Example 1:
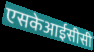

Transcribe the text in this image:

एसकेआईसीसी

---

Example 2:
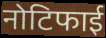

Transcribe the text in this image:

नोटिफाई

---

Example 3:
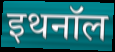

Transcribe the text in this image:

इथनॉल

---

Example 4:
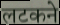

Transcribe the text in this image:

लटकने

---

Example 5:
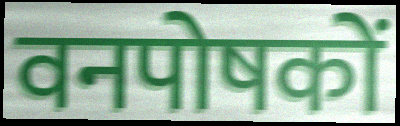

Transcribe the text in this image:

वनपोषकों